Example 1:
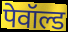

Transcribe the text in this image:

पेवॉल्ड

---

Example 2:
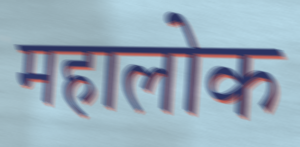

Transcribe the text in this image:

महालोक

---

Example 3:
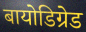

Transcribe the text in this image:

बायोडिग्रेड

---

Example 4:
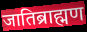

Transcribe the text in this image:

जातिब्राह्मण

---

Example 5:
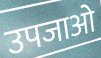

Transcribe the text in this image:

उपजाओ